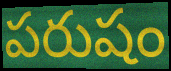
పరుషం